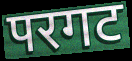
परगट